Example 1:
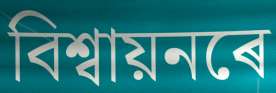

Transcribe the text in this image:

বিশ্বায়নৰে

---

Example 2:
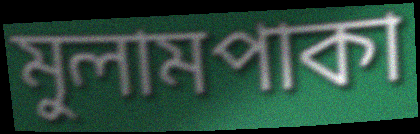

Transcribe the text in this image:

মুলামপাকা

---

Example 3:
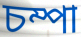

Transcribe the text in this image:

চম্পা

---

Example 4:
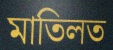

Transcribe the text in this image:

মাতিলত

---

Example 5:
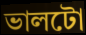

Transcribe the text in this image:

ভালটো